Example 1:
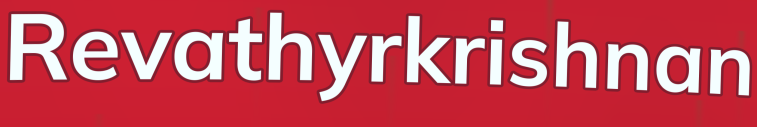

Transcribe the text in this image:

Revathyrkrishnan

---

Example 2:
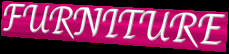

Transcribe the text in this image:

FURNITURE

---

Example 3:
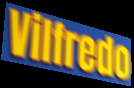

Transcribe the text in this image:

Vilfredo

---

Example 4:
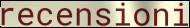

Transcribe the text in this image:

recensioni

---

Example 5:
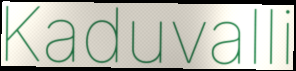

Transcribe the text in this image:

Kaduvalli